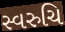
સ્વરુચિ